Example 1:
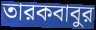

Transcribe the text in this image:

তারকবাবুর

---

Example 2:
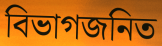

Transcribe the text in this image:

বিভাগজনিত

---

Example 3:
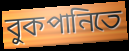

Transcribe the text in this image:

বুকপানিতে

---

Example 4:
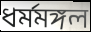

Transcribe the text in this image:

ধর্মমঙ্গল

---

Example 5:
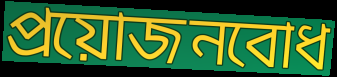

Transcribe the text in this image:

প্রয়োজনবোধ